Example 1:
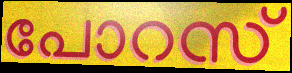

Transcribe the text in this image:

പോറസ്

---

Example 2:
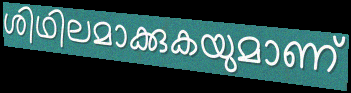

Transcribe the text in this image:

ശിഥിലമാക്കുകയുമാണ്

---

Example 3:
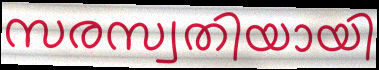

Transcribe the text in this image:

സരസ്വതിയായി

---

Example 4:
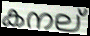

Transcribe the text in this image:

കനല്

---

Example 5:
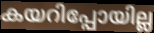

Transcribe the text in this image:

കയറിപ്പോയില്ല